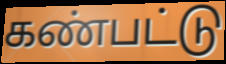
கண்பட்டு